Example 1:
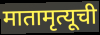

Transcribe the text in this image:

मातामृत्यूची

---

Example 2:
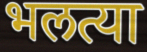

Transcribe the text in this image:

भलत्या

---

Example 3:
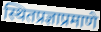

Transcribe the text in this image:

स्थितप्रज्ञाप्रमाणे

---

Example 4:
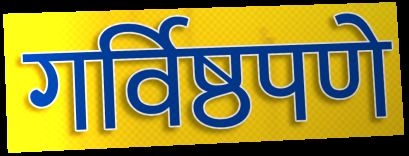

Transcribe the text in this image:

गर्विष्ठपणे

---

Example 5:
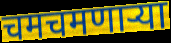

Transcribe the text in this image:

चमचमणार्‍या